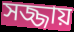
সজ্জায়